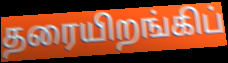
தரையிறங்கிப்